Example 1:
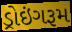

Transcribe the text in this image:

ડ્રોઇંગરૂમ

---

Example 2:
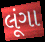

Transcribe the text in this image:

લૂંગા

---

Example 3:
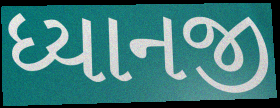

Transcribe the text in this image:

ધ્યાનજી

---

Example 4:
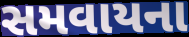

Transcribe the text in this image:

સમવાયના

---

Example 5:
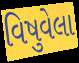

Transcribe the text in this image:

વિષુવેલા